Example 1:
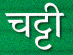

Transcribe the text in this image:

चट्टी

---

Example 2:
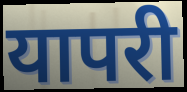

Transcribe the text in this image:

यापरी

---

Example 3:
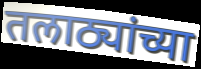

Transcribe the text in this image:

तलाठ्यांच्या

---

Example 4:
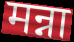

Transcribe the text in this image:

मन्ना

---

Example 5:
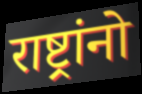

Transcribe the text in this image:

राष्ट्रांनो